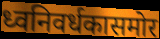
ध्वनिवर्धकासमोर